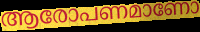
ആരോപണമാണോ